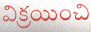
విక్రయించి